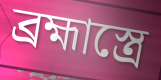
ব্রহ্মাস্ত্রে